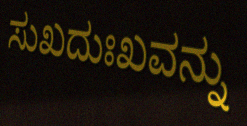
ಸುಖದುಃಖವನ್ನು